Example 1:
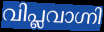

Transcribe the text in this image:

വിപ്ലവാഗ്നി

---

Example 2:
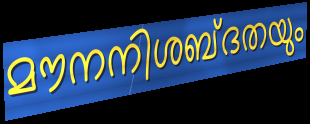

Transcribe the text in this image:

മൗനനിശബ്ദതയും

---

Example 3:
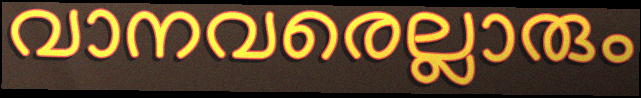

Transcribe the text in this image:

വാനവരെല്ലാരും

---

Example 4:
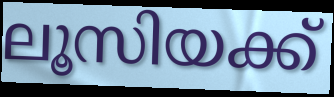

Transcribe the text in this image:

ലൂസിയക്ക്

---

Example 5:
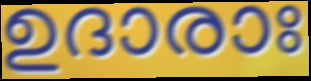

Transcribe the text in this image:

ഉദാരാഃ